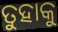
ତୁହାକୁ